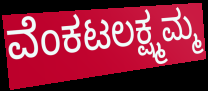
ವೆಂಕಟಲಕ್ಷ್ಮಮ್ಮ